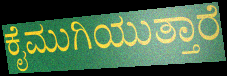
ಕೈಮುಗಿಯುತ್ತಾರೆ